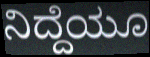
ನಿದ್ದೆಯೂ